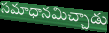
సమాధానమిచ్చాడు